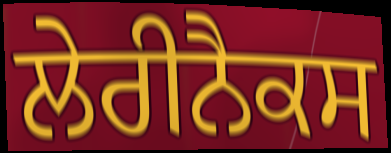
ਲੇਰੀਨੈਕਸ